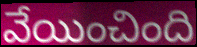
వేయించింది